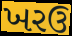
ખરઉ